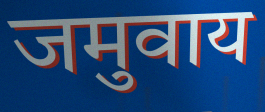
जमुवाय